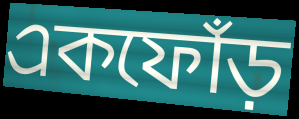
একফোঁড়